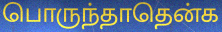
பொருந்தாதென்க